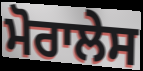
ਮੋਰਾਲੇਸ